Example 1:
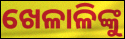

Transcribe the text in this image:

ଖେଳାଳିଙ୍କୁ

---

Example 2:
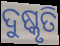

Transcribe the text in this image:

ଦୁଷ୍କୃତି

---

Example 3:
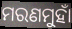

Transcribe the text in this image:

ମରଣମୁହାଁ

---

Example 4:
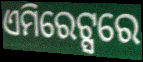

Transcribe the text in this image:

ଏମିରେଟ୍ସରେ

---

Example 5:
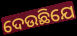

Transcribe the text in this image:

ଦେଉଛିଯେ